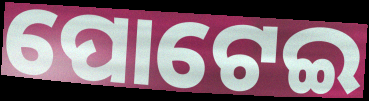
ପୋଟେଇ